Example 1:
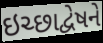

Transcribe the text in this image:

ઇચ્છાદ્વેષને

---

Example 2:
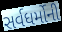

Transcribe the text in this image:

સર્વધર્મોની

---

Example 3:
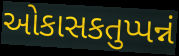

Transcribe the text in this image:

ઓકાસકતુપ્પન્નં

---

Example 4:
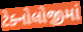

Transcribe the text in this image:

ટેક્નોલોજીમાં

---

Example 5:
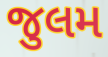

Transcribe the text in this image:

જુલમ